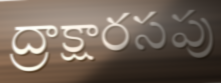
ద్రాక్షారసపు